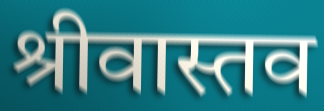
श्रीवास्तव